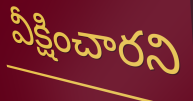
వీక్షించారని